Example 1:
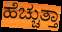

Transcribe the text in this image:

ಹೆಚ್ಚುತ್ತಾ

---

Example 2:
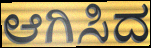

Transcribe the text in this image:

ಆಗಿಸಿದ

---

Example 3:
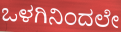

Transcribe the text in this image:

ಒಳಗಿನಿಂದಲೇ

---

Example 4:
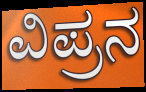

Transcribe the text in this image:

ವಿಪ್ರನ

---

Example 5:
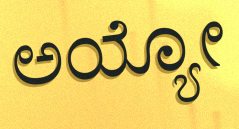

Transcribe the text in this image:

ಅಯ್ಯೋ